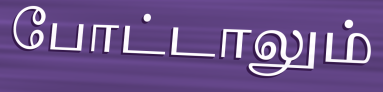
போட்டாலும்